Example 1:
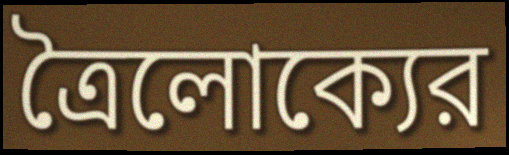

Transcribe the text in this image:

ত্রৈলোক্যের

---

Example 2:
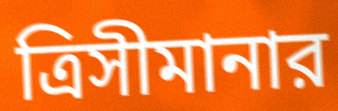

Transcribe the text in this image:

ত্রিসীমানার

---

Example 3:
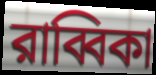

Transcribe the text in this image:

রাব্বিকা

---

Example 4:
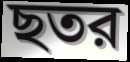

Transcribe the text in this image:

ছতর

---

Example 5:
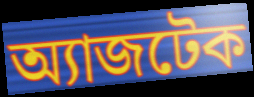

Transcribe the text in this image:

অ্যাজটেক